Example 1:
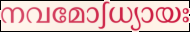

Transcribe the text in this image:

നവമോഽധ്യായഃ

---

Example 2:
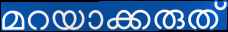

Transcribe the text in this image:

മറയാക്കരുത്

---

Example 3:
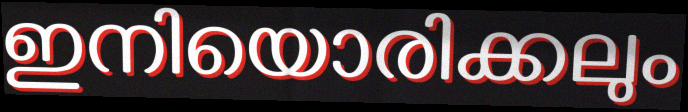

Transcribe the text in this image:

ഇനിയൊരിക്കലും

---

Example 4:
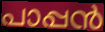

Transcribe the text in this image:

പാപ്പൻ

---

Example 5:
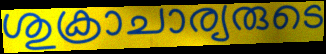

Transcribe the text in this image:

ശുക്രാചാര്യരുടെ